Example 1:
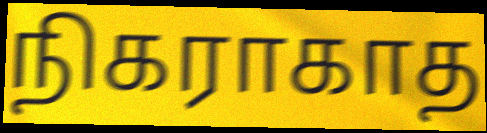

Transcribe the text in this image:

நிகராகாத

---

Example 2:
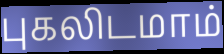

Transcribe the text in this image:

புகலிடமாம்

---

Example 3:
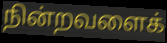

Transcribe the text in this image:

நின்றவளைக்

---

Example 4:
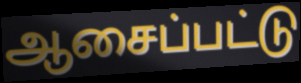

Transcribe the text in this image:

ஆசைப்பட்டு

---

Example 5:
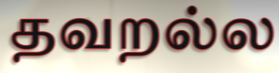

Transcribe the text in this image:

தவறல்ல